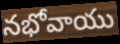
నభోవాయు